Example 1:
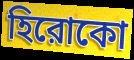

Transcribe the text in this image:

হিরোকো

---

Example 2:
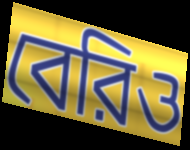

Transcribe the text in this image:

বেরিও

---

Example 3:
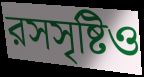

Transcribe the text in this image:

রসসৃষ্টিও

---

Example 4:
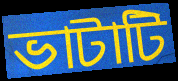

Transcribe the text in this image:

ভাটাটি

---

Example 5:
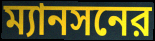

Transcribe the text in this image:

ম্যানসনের